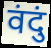
वंदुं